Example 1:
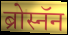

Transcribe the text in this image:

ब्रोस्नॅन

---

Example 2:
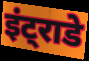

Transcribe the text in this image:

इंट्राडे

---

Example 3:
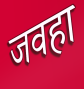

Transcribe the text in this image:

जवहा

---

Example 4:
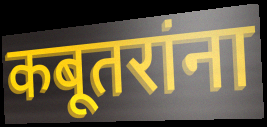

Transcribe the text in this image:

कबूतरांना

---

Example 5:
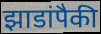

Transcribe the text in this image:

झाडांपैकी